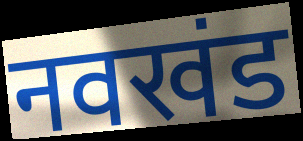
नवखंड